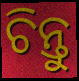
ଚିନ୍ତୁ